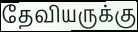
தேவியருக்கு